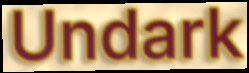
Undark